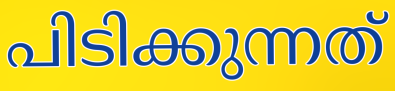
പിടിക്കുന്നത്